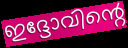
ഇദ്ദോവിന്റെ